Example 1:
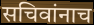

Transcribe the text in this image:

सचिवांनाच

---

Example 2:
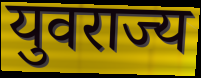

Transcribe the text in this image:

युवराज्य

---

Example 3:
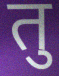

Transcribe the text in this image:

तु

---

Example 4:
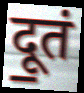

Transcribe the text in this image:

दू॒तं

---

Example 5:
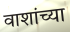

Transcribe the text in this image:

वाशांच्या